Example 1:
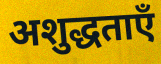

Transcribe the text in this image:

अशुद्धताएँ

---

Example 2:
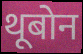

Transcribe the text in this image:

थूबोन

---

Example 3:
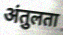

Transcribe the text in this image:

अंतुलता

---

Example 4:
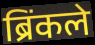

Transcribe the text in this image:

ब्रिंकले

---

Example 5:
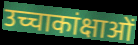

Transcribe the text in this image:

उच्चाकांक्षाओं